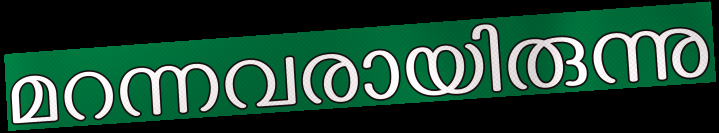
മറന്നവരായിരുന്നു